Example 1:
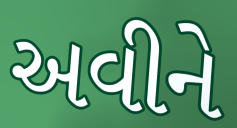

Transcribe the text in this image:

અવીને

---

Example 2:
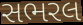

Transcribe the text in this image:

સભરલ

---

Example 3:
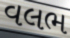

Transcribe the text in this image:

વલભ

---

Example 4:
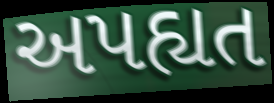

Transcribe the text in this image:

અપહ્યત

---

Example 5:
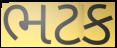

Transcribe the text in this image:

ભટક